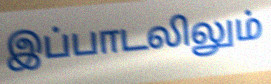
இப்பாடலிலும்